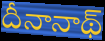
దీనానాథ్